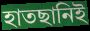
হাতছানিই